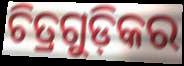
ଚିତ୍ରଗୁଡ଼ିକର